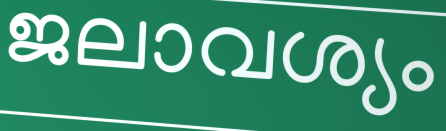
ജലാവശ്യം